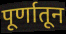
पूर्णातून